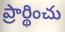
ప్రార్థించు